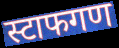
स्टाफगण